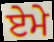
ਏਮੇ